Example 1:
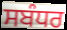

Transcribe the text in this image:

ਸਬੰਧਰ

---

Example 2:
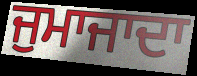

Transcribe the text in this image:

ਜੁਮਾਜਾਦਾ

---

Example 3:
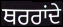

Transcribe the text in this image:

ਥਰਰਾਂਦੇ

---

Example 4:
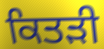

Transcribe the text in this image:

ਕਿਤੜੀ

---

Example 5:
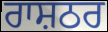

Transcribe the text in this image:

ਰਾਸ਼ਠਰ